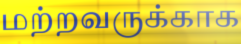
மற்றவருக்காக